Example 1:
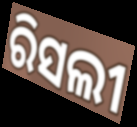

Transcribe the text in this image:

ରିସଲୀ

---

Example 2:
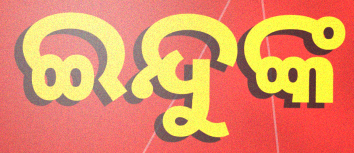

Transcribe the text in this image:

ଇନ୍ଦୁଙ୍କ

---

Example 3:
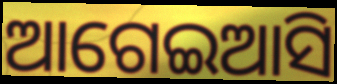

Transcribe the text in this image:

ଆଗେଇଆସି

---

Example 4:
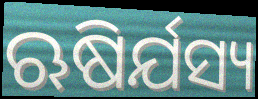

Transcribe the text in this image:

ଋଷିର୍ଯସ୍ୟ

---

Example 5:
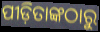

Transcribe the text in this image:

ପୀଡ଼ିତାଙ୍କଠାରୁ